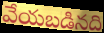
వేయబడినది